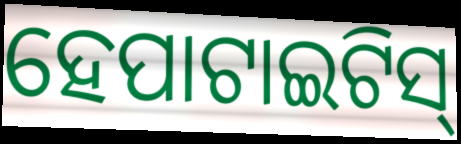
ହେପାଟାଇଟିସ୍